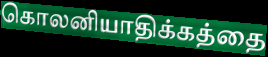
கொலனியாதிக்கத்தை